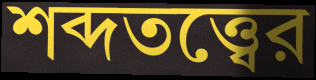
শব্দতত্ত্বের